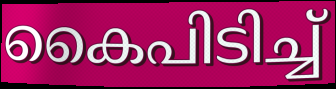
കൈപിടിച്ച്